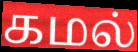
கமல்